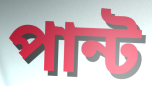
পান্ট